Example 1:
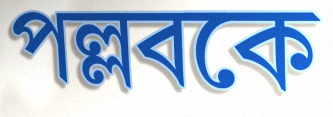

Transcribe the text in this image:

পল্লবকে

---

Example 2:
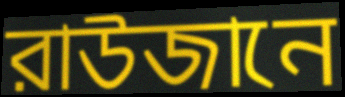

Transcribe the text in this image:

রাউজানে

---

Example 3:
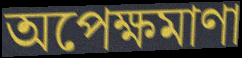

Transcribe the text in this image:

অপেক্ষমাণা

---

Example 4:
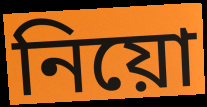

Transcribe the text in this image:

নিয়ো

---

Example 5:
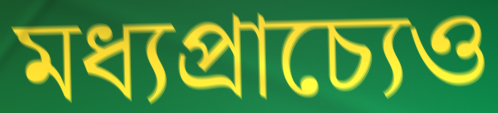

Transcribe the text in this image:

মধ্যপ্রাচ্যেও